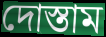
দোস্তাম